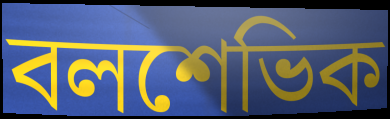
বলশেভিক